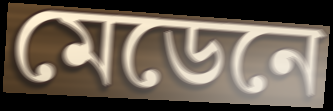
মেডেনে